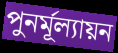
পুনর্মূল্যায়ন